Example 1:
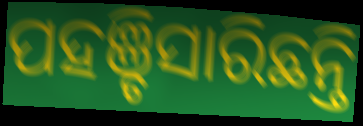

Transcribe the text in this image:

ପହଞ୍ଚିସାରିଛନ୍ତି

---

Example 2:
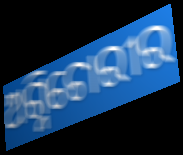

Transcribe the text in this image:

ଅଗ୍ନିଚୋରୀର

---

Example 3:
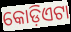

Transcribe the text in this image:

କୋଡ଼ିଏଟା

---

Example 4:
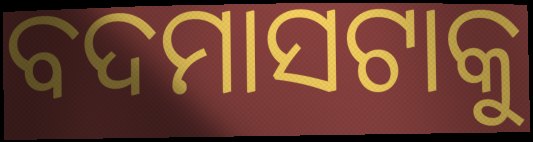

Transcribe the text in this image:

ବଦମାସଟାକୁ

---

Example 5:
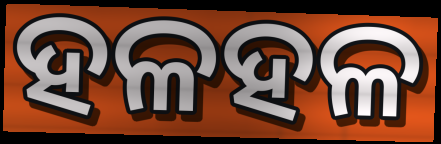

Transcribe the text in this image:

ହଳହଳ